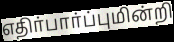
எதிர்பார்ப்புமின்றி